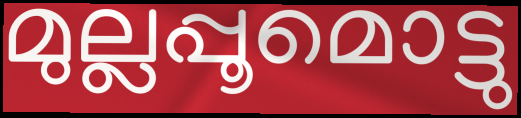
മുല്ലപ്പൂമൊട്ടു